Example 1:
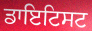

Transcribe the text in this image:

ਡਾਇਟਿਸਟ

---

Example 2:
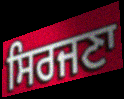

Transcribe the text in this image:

ਸਿਰਜਣਾ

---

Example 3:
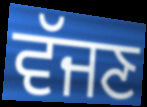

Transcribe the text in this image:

ਵੱਜਣ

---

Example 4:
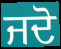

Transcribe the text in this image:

ਜਦੋ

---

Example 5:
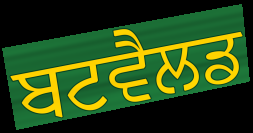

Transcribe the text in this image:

ਬਟਵੈਲਡ